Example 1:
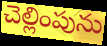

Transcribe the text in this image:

చెల్లింపును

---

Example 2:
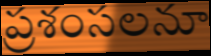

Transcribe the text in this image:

ప్రశంసలనూ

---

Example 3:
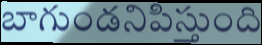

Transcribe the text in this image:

బాగుండనిపిస్తుంది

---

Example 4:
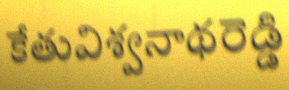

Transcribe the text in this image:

కేతువిశ్వనాథరెడ్డి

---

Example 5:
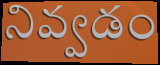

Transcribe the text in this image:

నివ్వడం